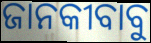
ଜାନକୀବାବୁ